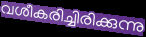
വശീകരിച്ചിരിക്കുന്നു